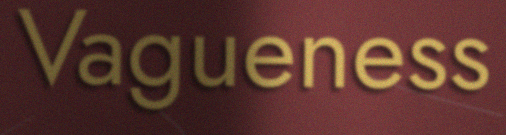
Vagueness